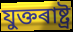
যুক্তৰাষ্ট্ৰ